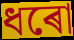
ধৰো